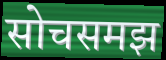
सोचसमझ